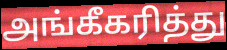
அங்கீகரித்து